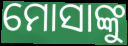
ମୋସାଙ୍କୁ